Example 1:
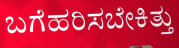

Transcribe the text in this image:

ಬಗೆಹರಿಸಬೇಕಿತ್ತು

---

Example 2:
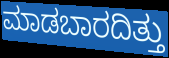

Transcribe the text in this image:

ಮಾಡಬಾರದಿತ್ತು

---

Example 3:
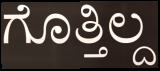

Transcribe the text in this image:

ಗೊತ್ತಿಲ್ದ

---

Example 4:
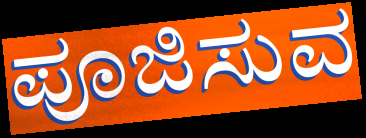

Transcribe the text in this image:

ಪೂಜಿಸುವ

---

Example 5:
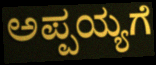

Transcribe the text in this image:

ಅಪ್ಪಯ್ಯಗೆ